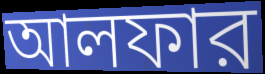
আলফার